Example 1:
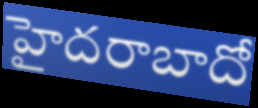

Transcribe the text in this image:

హైదరాబాదో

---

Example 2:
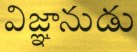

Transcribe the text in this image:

విజ్ఞానుడు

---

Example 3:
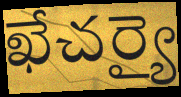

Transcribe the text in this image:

ఖేచర్యై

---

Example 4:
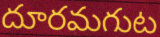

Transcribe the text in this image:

దూరమగుట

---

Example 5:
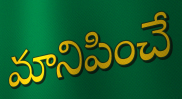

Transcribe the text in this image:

మానిపించే